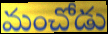
మంచోడు